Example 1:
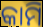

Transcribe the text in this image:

କାମି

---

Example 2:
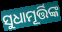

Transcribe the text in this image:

ସୁଧାମୂର୍ତ୍ତିଙ୍କ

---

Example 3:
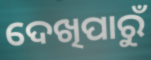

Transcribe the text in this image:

ଦେଖିପାରୁଁ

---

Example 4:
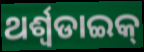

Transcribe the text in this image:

ଥର୍ଶ୍ଵଡାଇକ୍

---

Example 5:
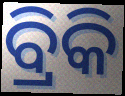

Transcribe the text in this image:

ବ୍ରିକି